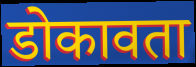
डोकावता